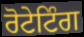
ਰੋਟੇਟਿੰਗ